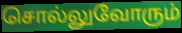
சொல்லுவோரும்